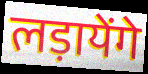
लड़ायेंगे